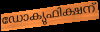
ഡോക്യുഫിക്ഷന്